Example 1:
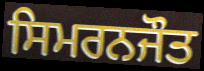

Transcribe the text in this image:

ਸਿਮਰਨਜੌਤ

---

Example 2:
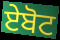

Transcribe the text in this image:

ਏਬੋਟ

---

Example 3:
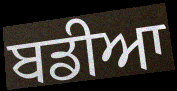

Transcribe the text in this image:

ਬਡੀਆ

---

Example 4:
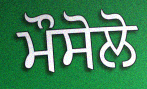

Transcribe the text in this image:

ਮੌਸੋਲੋ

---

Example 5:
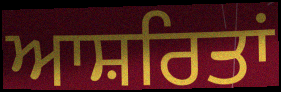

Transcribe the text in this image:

ਆਸ਼ਰਿਤਾਂ